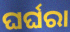
ଘର୍ଘରା